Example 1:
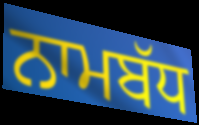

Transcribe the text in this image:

ਨਾਮਬੱਧ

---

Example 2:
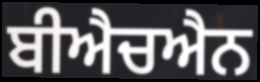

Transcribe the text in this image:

ਬੀਐਚਐਨ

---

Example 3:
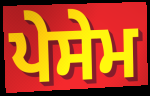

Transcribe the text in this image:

ਪੇਸੇਮ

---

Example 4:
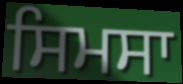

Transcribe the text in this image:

ਸਿਮਸਾ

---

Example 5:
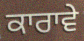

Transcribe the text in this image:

ਕਾਰਾਵੇ